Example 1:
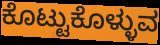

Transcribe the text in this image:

ಕೊಟ್ಟುಕೊಳ್ಳುವ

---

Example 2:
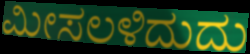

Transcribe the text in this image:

ಮೀಸಲಳಿದುದು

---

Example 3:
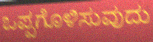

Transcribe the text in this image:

ಒಪ್ಪಗೊಳಿಸುವುದು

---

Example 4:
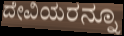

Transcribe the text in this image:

ದೇವಿಯರನ್ನೂ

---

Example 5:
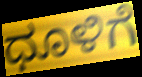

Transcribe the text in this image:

ಧೂಳಿಗೆ